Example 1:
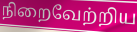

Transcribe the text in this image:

நிறைவேற்றிய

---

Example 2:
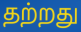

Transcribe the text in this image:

தற்றது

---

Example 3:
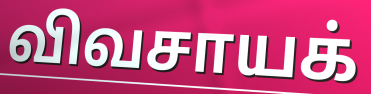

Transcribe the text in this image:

விவசாயக்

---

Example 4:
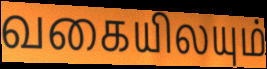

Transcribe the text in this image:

வகையிலயும்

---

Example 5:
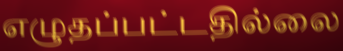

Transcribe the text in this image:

எழுதப்பட்டதில்லை